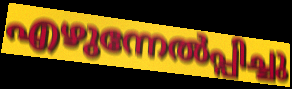
എഴുന്നേൽപ്പിച്ചു